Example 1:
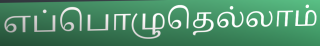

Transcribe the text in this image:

எப்பொழுதெல்லாம்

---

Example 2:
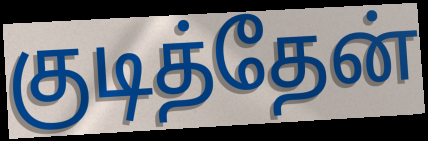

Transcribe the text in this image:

குடித்தேன்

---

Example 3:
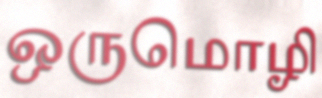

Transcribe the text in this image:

ஒருமொழி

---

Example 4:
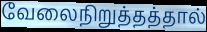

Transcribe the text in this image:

வேலைநிறுத்தத்தால்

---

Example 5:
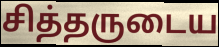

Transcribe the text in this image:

சித்தருடைய